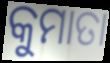
କୁମାତା